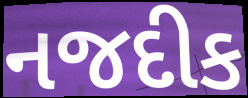
નજદીક